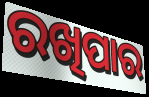
ରଖିପାର